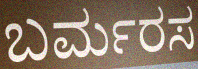
ಬರ್ಮರಸ